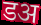
डअ